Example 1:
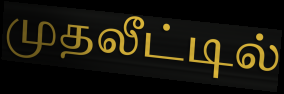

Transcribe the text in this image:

முதலீட்டில்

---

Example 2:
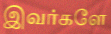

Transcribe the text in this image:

இவர்களே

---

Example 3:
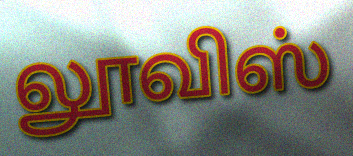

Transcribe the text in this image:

லூவிஸ்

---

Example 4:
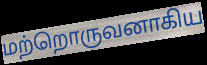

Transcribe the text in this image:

மற்றொருவனாகிய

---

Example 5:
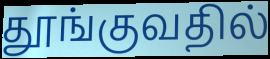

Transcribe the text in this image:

தூங்குவதில்